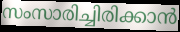
സംസാരിച്ചിരിക്കാൻ